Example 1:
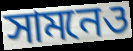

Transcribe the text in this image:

সামনেও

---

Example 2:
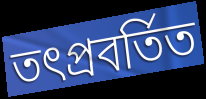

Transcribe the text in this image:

তৎপ্রবর্তিত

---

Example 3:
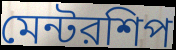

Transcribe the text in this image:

মেন্টরশিপ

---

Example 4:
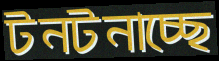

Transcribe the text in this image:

টনটনাচ্ছে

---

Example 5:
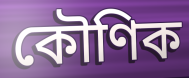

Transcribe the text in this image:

কৌণিক